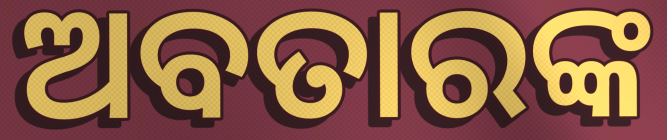
ଅବତାରଙ୍କ